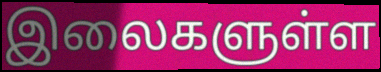
இலைகளுள்ள